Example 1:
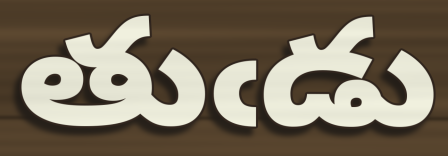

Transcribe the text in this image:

తుఁడు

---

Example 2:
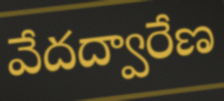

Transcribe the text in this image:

వేదద్వారేణ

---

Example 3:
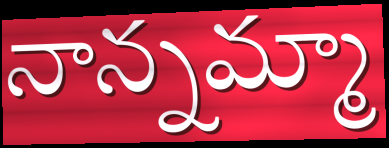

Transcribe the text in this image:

నాన్నమ్మా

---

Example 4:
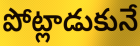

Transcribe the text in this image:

పోట్లాడుకునే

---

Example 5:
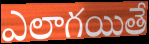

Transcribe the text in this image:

ఎలాగయితే